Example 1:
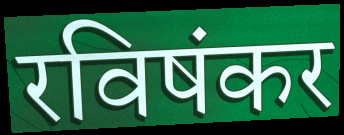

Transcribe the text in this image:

रविषंकर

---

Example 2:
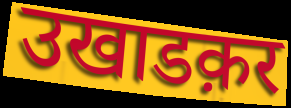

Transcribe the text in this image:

उखाडक़र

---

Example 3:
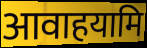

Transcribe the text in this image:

आवाहयामि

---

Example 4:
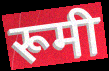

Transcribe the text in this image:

रूमी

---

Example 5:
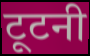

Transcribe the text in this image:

टूटनी